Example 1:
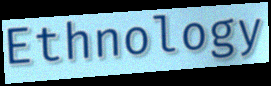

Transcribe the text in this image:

Ethnology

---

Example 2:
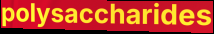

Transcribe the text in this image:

polysaccharides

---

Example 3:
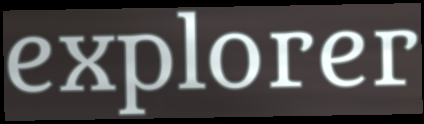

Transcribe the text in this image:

explorer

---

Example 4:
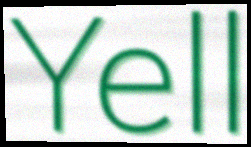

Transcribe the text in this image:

Yell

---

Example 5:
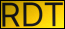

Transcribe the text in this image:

RDT